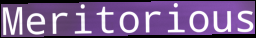
Meritorious